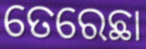
ତେରେଛା